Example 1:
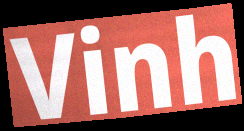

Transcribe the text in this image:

Vinh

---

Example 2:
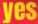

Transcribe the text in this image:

yes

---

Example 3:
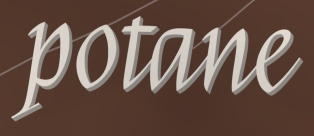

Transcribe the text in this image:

potane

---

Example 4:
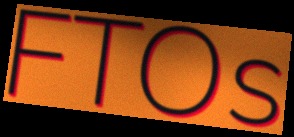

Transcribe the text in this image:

FTOs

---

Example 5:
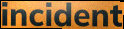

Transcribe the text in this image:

incident